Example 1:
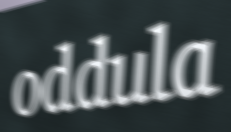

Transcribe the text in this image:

oddula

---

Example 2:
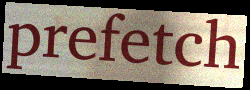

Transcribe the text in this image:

prefetch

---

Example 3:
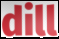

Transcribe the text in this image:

dill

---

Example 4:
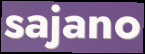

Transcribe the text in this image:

sajano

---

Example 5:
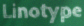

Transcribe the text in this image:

Linotype